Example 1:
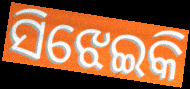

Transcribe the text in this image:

ସିଝେଇକି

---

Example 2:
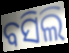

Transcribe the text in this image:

ବସିଲି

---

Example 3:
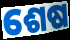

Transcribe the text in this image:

ଶେଷ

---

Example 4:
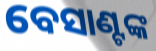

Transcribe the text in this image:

ବେସାଣ୍ଟଙ୍କ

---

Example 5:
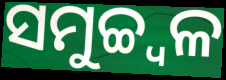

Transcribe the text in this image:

ସମୁଚ୍ଚ୍ୱଳ